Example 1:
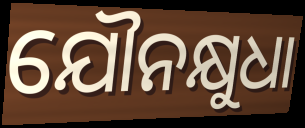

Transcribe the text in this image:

ଯୌନକ୍ଷୁଧା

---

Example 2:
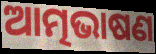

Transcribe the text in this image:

ଆତ୍ମଭାଷଣ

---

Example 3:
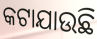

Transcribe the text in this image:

କଟାଯାଉଛି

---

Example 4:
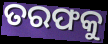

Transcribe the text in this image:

ତରଫକୁ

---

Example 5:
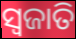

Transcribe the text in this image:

ସ୍ବଜାତି